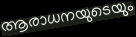
ആരാധനയുടെയും